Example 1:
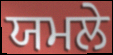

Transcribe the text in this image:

ਯਮਲੇ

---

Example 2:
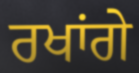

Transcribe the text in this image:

ਰਖਾਂਗੇ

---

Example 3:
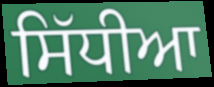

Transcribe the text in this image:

ਸਿੱਧੀਆ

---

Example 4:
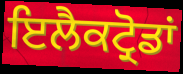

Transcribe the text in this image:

ਇਲੈਕਟ੍ਰੋਡਾਂ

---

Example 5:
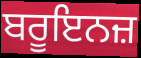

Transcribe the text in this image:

ਬਰੂਇਨਜ਼